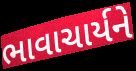
ભાવાચાર્યને